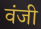
वंजी